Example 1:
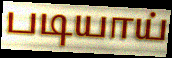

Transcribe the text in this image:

படியாய்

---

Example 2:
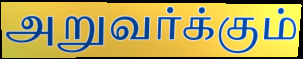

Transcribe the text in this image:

அறுவர்க்கும்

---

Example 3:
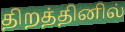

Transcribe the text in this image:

திறத்தினில்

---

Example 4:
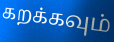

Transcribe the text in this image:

கறக்கவும்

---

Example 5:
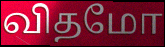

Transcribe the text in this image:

விதமோ